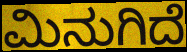
ಮಿನುಗಿದೆ